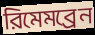
রিমেমব্রেন